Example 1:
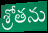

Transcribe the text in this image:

శ్రోతను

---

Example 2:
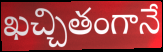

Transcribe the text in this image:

ఖచ్చితంగానే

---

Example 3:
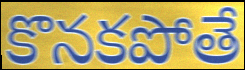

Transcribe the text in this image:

కొనకపోతే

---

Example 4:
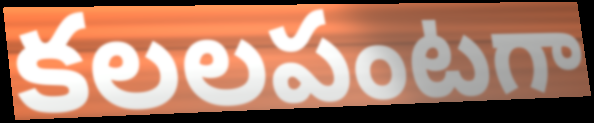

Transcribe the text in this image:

కలలపంటగా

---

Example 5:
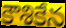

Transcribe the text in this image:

కౌశికేన